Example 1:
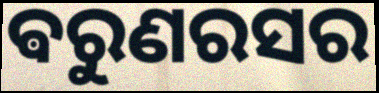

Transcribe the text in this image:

ଵରୁଣରସର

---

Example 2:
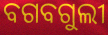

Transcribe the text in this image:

ବଗବଗୁଲୀ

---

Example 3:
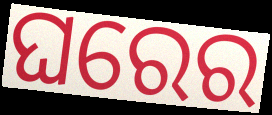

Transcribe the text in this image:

ଘରେର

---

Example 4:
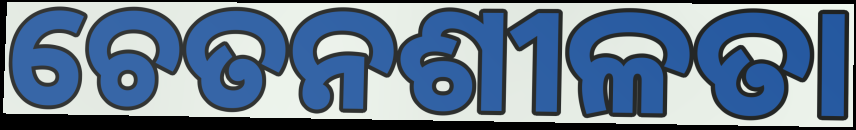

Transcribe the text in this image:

ଚେତନଶୀଳତା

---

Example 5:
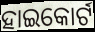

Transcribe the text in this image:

ହାଇକୋର୍ଟ